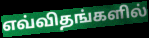
எவ்விதங்களில்